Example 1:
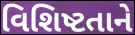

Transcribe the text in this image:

વિશિષ્ટતાને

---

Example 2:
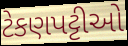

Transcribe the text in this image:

ટેકણપટ્ટીઓ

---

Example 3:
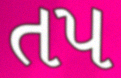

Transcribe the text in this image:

તપ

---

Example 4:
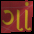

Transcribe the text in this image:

ગાં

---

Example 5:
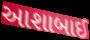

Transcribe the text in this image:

આશાબાઈ